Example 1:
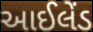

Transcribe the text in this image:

આઈલેંડ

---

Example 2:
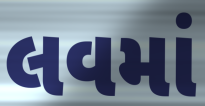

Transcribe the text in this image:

લવમાં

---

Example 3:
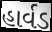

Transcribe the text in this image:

હાર્વડ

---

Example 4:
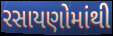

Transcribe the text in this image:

રસાયણોમાંથી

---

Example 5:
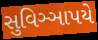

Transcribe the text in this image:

સુવિઞ્ઞાપયે